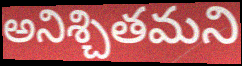
అనిశ్చితమని